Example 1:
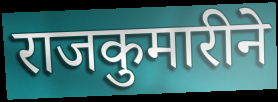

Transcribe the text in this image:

राजकुमारीने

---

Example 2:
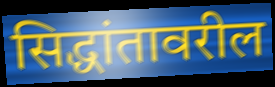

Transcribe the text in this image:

सिद्धांतावरील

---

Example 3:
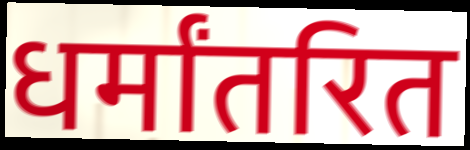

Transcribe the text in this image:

धर्मांतरित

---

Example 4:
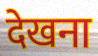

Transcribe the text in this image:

देखना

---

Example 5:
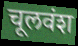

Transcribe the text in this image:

चूलवंश